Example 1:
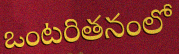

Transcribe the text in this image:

ఒంటరితనంలో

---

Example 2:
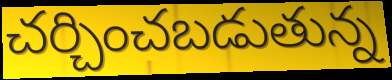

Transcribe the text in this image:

చర్చించబడుతున్న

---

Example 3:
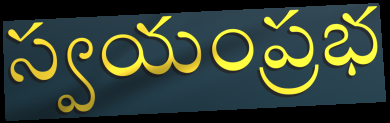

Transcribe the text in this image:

స్వయంప్రభ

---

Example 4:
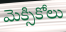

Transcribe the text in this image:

మెక్సికోలు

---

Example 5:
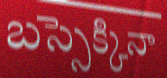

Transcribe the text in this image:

బస్సెక్కినా